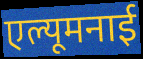
एल्यूमनाई